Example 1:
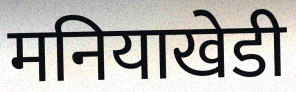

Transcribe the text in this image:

मनियाखेडी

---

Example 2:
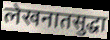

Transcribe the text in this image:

लेखनातसुद्धा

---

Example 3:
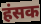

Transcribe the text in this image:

हंसक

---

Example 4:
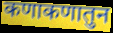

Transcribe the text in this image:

कणाकणातुन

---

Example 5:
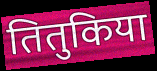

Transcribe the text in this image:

तितुकिया